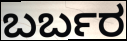
ಬರ್ಬರ